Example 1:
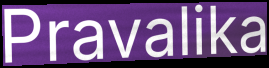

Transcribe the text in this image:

Pravalika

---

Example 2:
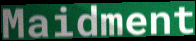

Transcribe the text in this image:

Maidment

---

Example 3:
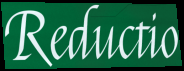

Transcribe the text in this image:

Reductio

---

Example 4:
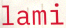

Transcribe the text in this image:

lami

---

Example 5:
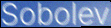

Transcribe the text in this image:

Sobolev